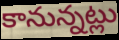
కానున్నట్లు